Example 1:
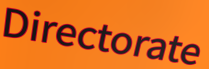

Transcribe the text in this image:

Directorate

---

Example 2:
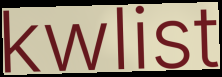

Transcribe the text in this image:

kwlist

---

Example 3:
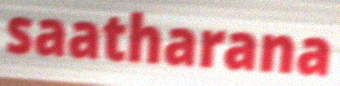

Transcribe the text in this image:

saatharana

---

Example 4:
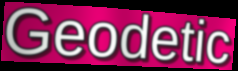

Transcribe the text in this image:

Geodetic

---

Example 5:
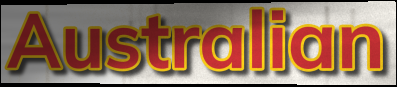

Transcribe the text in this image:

Australian